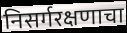
निसर्गरक्षणाचा